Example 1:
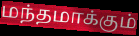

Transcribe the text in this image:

மந்தமாக்கும்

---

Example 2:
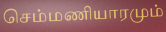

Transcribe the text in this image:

செம்மணியாரமும்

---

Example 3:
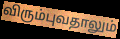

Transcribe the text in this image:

விரும்புவதாலும்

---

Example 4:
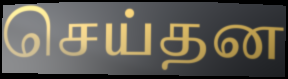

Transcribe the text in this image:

செய்தன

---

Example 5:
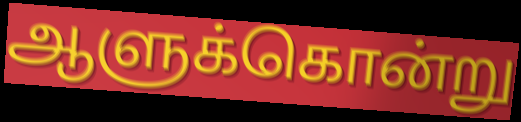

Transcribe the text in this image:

ஆளுக்கொன்று